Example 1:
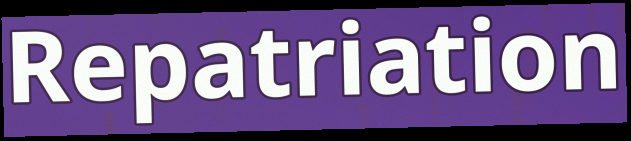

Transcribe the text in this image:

Repatriation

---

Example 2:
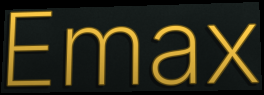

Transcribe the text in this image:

Emax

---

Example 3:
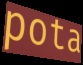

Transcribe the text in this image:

pota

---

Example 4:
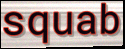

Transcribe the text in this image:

squab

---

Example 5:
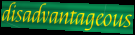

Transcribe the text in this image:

disadvantageous